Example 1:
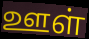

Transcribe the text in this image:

ஊள்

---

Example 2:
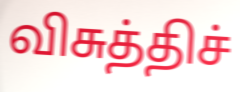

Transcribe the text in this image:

விசுத்திச்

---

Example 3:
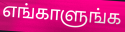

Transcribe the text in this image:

எங்காளுங்க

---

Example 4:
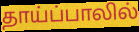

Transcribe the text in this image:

தாய்ப்பாலில்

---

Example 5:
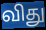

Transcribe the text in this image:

விது